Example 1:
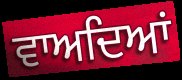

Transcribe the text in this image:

ਵਾਅਦਿਆਂ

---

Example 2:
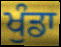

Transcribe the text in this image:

ਖੁੰਡਾ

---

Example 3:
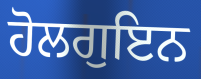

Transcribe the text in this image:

ਹੋਲਗੁਇਨ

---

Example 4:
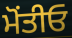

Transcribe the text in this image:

ਮੋਂਤੀਓ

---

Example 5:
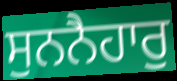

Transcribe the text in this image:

ਸੁਨਨੈਹਾਰੁ